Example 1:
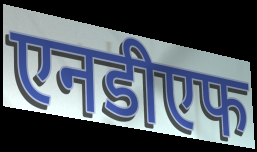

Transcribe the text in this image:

एनडीएफ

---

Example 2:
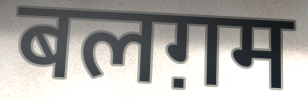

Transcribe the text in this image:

बलग़म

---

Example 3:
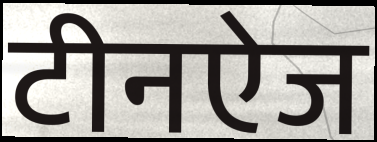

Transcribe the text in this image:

टीनऐज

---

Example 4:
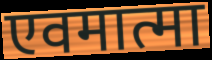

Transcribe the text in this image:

एवमात्मा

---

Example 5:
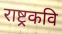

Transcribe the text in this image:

राष्ट्रकवि